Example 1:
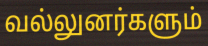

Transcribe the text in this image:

வல்லுனர்களும்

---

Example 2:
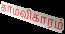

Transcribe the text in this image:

காமவிகாரம்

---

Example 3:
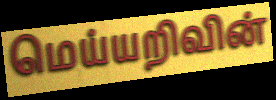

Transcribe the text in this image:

மெய்யறிவின்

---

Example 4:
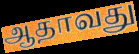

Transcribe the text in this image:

ஆதாவது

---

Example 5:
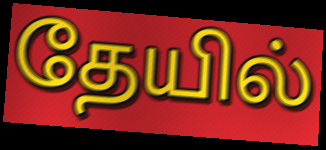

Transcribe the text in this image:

தேயில்